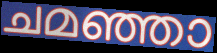
ചമഞ്ഞാ